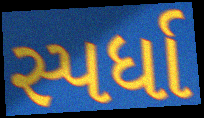
સ્પર્ધા